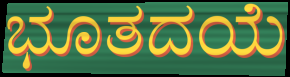
ಭೂತದಯೆ